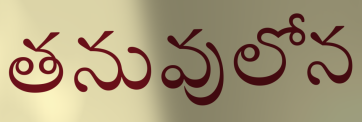
తనువులోన